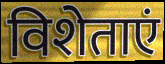
विशेताएं